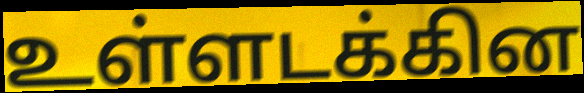
உள்ளடக்கின